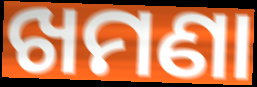
ଖମଣା